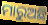
ମାରୁଅଛି